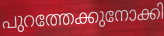
പുറത്തേക്കുനോക്കി